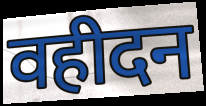
वहीदन